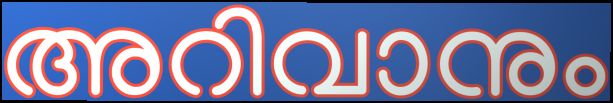
അറിവാനും